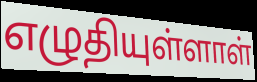
எழுதியுள்ளாள்